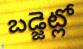
బడ్జెట్లో